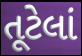
તૂટેલાં